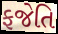
ફજેતિ